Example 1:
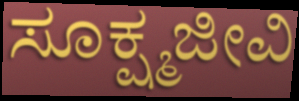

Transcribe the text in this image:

ಸೂಕ್ಷ್ಮಜೀವಿ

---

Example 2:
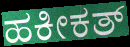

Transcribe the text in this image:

ಹಕೀಕತ್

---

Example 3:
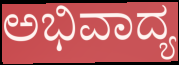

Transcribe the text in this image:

ಅಭಿವಾದ್ಯ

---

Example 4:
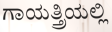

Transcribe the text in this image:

ಗಾಯತ್ತ್ರಿಯಲ್ಲಿ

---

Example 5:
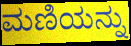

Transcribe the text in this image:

ಮಣಿಯನ್ನು